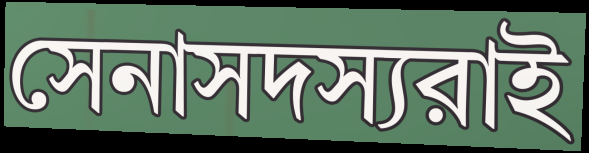
সেনাসদস্যরাই